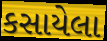
કસાયેલા